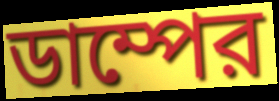
ডাম্পের